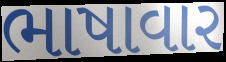
ભાષાવાર